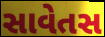
સાવેતસ